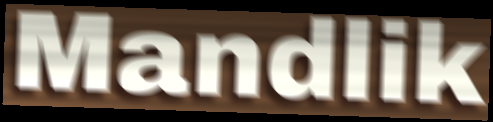
Mandlik